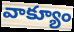
వాక్యూం